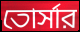
তোর্সার